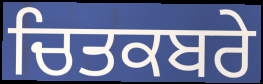
ਚਿਤਕਬਰੇ